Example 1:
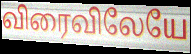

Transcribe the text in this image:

விரைவிலேயே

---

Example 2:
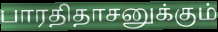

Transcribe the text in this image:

பாரதிதாசனுக்கும்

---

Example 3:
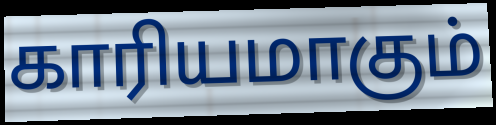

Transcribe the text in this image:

காரியமாகும்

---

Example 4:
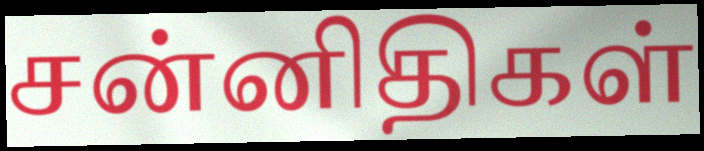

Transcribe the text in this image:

சன்னிதிகள்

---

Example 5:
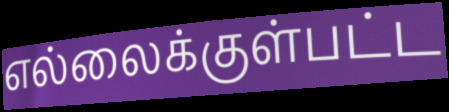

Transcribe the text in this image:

எல்லைக்குள்பட்ட